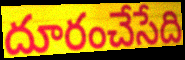
దూరంచేసేది